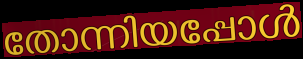
തോന്നിയപ്പോൾ